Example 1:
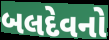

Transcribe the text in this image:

બલદેવનો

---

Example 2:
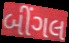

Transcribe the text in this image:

બીંગલ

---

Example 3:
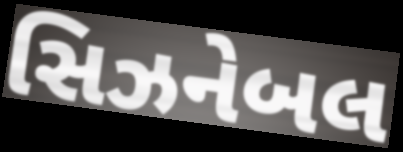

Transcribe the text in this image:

સિઝનેબલ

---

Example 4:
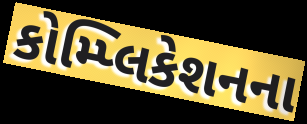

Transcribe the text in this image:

કોમ્પ્લિકેશનના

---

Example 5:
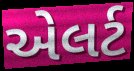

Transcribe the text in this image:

એલર્ટ